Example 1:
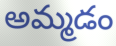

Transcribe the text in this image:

అమ్మడం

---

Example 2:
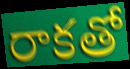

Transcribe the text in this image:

రాకతో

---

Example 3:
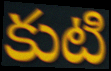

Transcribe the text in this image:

కుటి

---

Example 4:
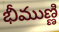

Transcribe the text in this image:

భీముణ్ణి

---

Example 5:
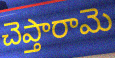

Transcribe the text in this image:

చెప్తారామె